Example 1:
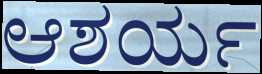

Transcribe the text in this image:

ಆಶರ್ಯ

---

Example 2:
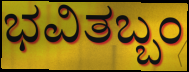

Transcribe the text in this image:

ಭವಿತಬ್ಬಂ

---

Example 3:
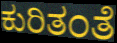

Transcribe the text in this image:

ಕುರಿತಂತೆ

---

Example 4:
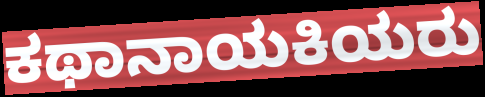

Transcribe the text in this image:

ಕಥಾನಾಯಕಿಯರು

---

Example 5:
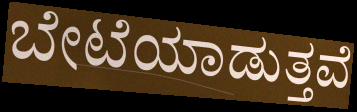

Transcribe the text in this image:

ಬೇಟೆಯಾಡುತ್ತವೆ